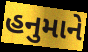
હનુમાને